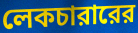
লেকচারারের